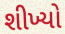
શીખ્યો